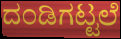
ದಂಡಿಗಟ್ಟಲೆ